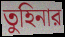
তুহিনার